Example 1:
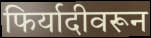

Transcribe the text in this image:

फिर्यादीवरून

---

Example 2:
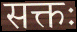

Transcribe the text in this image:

सक्तः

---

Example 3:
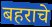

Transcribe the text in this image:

बहराचे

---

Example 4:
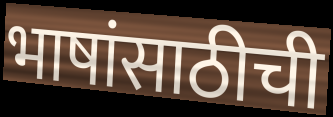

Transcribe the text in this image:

भाषांसाठीची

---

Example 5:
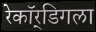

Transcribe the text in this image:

रेकॉर्डिगला